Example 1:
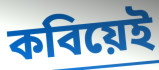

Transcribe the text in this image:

কবিয়েই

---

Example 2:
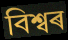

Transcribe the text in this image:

বিশ্বৰ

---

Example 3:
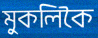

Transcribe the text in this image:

মুকলিকৈ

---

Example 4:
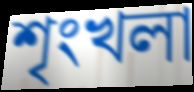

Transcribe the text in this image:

শৃংখলা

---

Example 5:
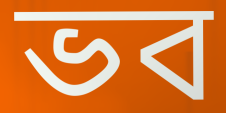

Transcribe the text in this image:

ভব